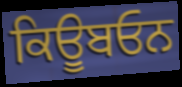
ਕਿਊਬਓਨ